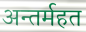
अन्तर्महत